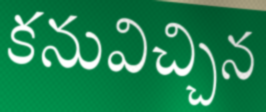
కనువిచ్చిన